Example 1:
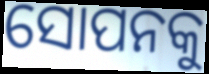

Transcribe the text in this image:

ସୋପନକୁ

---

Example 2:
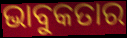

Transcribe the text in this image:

ଭାବୁକତାର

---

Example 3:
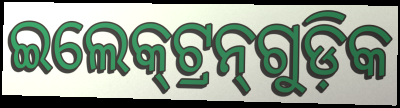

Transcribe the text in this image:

ଇଲେକ୍‍ଟ୍ରନ୍‍ଗୁଡ଼ିକ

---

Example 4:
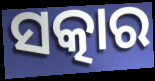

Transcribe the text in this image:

ସତ୍କାର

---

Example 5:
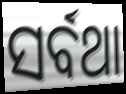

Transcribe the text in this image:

ସର୍ବଥା